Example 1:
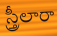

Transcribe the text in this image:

స్త్రీలారా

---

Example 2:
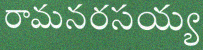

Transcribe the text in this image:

రామనరసయ్య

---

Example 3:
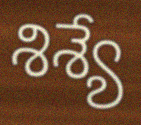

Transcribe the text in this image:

శిశ్యే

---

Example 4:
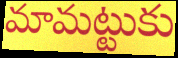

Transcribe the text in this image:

మామట్టుకు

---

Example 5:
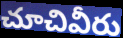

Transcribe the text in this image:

చూచివీరు